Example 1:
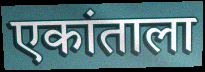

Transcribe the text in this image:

एकांताला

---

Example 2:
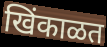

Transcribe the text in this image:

खिंकाळत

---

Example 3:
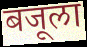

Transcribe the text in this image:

बजूला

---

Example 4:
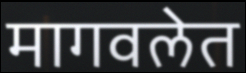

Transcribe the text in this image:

मागवलेत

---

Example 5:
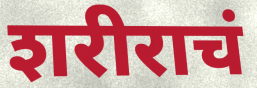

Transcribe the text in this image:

शरीराचं